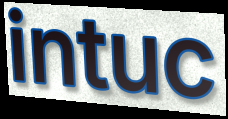
intuc